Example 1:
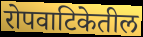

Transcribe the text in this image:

रोपवाटिकेतील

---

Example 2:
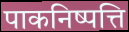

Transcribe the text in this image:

पाकनिष्पत्ति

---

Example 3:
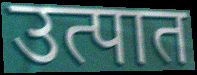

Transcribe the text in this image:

उत्पात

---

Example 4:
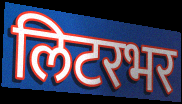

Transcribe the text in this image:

लिटरभर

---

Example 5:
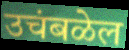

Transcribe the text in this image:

उचंबळेल